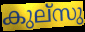
കുല്സു